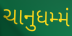
ચાનુધમ્મં